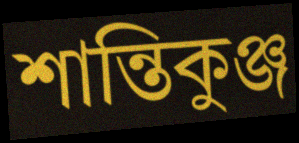
শান্তিকুঞ্জ